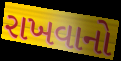
રાખવાનો